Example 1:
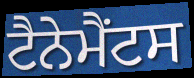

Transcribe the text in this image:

ਟੈਨੇਮੈਂਟਸ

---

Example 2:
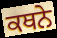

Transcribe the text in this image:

ਕਥਨੇ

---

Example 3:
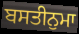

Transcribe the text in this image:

ਬਸਤੀਨੁਮਾ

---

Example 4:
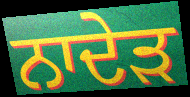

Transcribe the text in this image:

ਨਾਦੇੜ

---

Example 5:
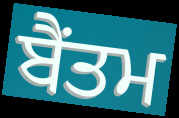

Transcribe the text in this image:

ਬੈਂਤਮ